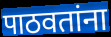
पाठवतांना